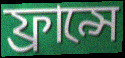
ফ্রান্সে